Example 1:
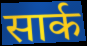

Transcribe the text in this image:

सार्क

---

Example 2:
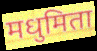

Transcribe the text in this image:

मधुमिता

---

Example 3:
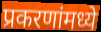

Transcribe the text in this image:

प्रकरणांमध्ये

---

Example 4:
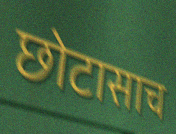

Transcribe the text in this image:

छोटासाच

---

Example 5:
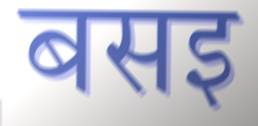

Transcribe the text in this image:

बसइ